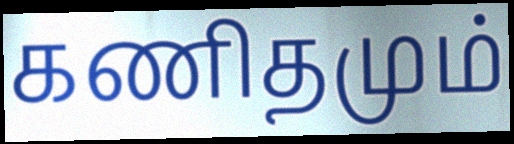
கணிதமும்